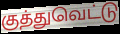
குத்துவெட்டு